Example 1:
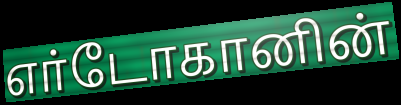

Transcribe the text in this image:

எர்டோகானின்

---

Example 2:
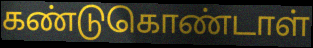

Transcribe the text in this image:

கண்டுகொண்டாள்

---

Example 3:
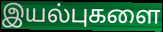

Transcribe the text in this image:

இயல்புகளை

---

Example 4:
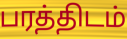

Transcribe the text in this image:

பரத்திடம்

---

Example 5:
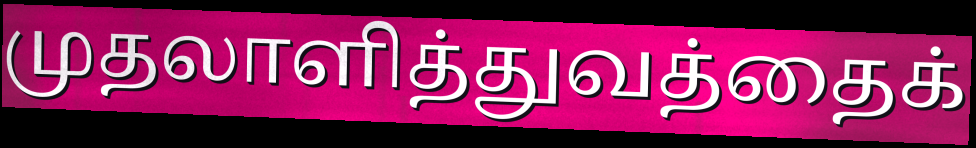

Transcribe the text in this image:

முதலாளித்துவத்தைக்